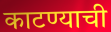
काटण्याची